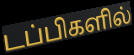
டப்பிகளில்